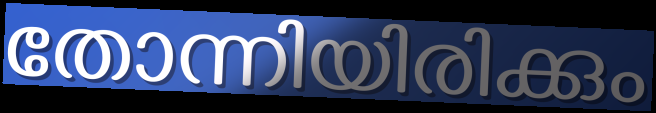
തോന്നിയിരിക്കും